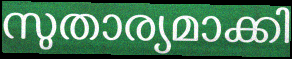
സുതാര്യമാക്കി